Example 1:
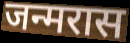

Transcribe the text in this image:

जन्मरास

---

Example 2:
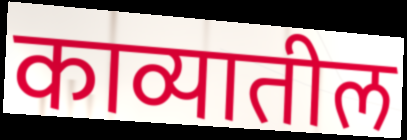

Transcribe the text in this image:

काव्यातील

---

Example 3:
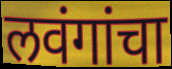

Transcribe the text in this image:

लवंगांचा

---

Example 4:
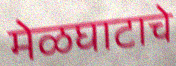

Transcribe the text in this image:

मेळघाटाचे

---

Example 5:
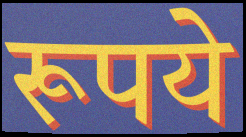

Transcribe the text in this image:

रूपये